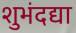
शुभंदद्या